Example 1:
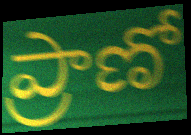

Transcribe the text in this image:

ప్రాణో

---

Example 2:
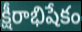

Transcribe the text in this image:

క్షీరాభిషేకం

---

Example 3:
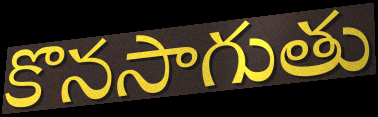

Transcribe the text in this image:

కొనసాగుతు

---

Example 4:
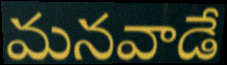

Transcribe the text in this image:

మనవాడే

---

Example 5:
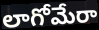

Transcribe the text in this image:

లాగోమేరా